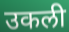
उकली